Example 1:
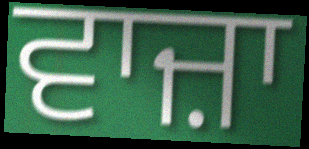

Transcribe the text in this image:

ਵਾਜ਼ਾ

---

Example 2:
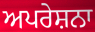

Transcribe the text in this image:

ਅਪਰੇਸ਼ਨਾ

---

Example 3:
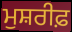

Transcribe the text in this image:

ਮੁਸ਼ਰੀਫ਼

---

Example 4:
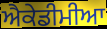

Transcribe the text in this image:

ਐਕੇਡੀਮੀਆ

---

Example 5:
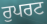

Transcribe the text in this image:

ਰੁਪਰਟ